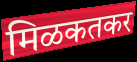
मिळकतकर